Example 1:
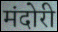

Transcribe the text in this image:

मंदोरी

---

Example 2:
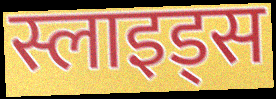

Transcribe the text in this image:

स्लाइड्स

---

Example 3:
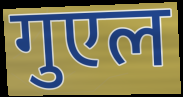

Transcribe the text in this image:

गुएल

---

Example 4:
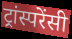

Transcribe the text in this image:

ट्रांस्परेंसी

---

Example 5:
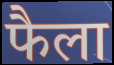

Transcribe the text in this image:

फैला